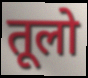
तूलो